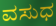
ವಸುಧ